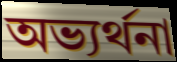
অভ্যৰ্থনা